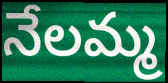
నేలమ్మ